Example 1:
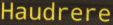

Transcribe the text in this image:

Haudrere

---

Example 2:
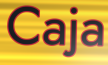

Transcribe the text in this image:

Caja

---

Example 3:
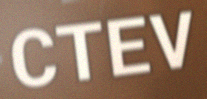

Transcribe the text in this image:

CTEV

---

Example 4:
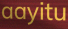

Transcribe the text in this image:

aayitu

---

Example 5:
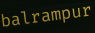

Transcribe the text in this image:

balrampur